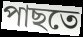
পাছতে